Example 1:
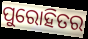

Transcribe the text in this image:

ପୁରୋହିତର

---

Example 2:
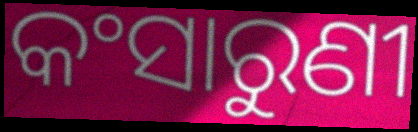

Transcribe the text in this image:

କଂସାରୁଣୀ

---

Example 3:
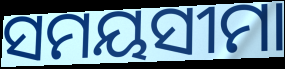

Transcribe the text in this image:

ସମୟସୀମା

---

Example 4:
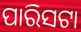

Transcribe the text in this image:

ପାରିସଟା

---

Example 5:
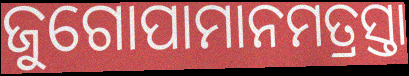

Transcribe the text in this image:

ଜୁଗୋପାମାନମତ୍ରସ୍ତା